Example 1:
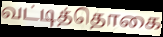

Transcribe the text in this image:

வட்டித்தொகை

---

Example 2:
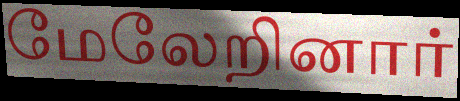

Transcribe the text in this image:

மேலேறினார்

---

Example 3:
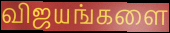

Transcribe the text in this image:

விஜயங்களை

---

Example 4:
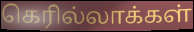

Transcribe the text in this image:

கெரில்லாக்கள்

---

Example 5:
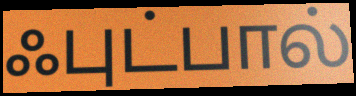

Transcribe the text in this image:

ஃபுட்பால்